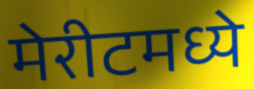
मेरीटमध्ये